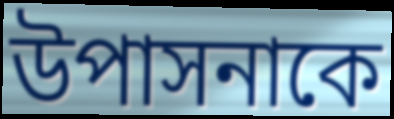
উপাসনাকে